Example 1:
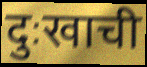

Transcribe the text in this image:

दुःखाची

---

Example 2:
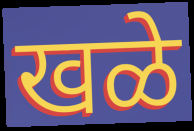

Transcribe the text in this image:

खळे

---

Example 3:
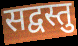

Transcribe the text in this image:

सद्वस्तु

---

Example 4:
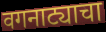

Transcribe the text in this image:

वगनाट्याचा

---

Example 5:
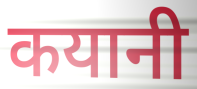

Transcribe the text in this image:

कयानी